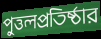
পুত্তলপ্রতিষ্ঠার